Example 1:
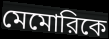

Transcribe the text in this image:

মেমোরিকে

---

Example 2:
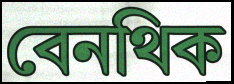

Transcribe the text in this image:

বেনথিক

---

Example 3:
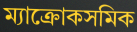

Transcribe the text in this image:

ম্যাক্রোকসমিক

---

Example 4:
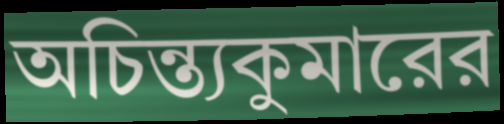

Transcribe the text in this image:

অচিন্ত্যকুমারের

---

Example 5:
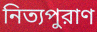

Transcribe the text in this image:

নিত্যপুরাণ